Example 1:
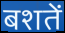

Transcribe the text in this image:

बशतें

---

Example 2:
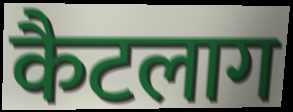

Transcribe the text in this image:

कैटलाग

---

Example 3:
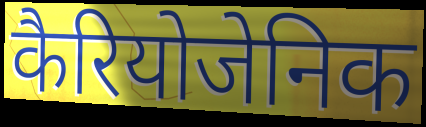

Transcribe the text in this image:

कैरियोजेनिक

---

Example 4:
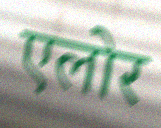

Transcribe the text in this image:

एलोर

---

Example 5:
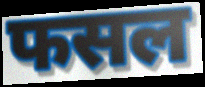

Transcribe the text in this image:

फसल